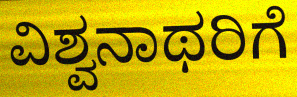
ವಿಶ್ವನಾಥರಿಗೆ